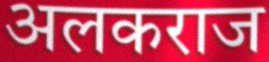
अलकराज